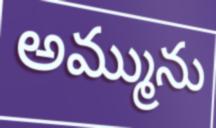
అమ్మును